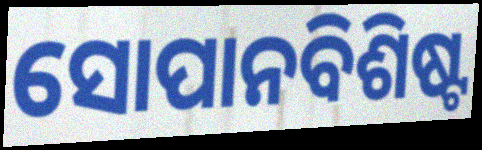
ସୋପାନବିଶିଷ୍ଟ